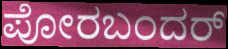
ಪೋರಬಂದರ್